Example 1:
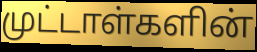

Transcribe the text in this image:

முட்டாள்களின்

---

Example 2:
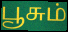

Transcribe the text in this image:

பூசும்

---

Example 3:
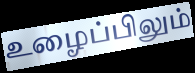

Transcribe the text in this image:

உழைப்பிலும்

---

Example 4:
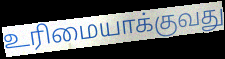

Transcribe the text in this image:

உரிமையாக்குவது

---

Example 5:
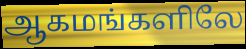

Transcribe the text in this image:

ஆகமங்களிலே